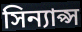
সিন্যাপ্স